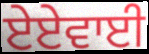
ਏਏਵਾਈ